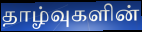
தாழ்வுகளின்